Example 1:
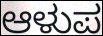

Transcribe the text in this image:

ಆಳುಪ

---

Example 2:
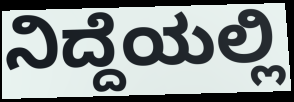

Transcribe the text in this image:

ನಿದ್ದೆಯಲ್ಲಿ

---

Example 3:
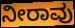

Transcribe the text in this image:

ನೀರಾವು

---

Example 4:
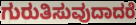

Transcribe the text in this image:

ಗುರುತಿಸುವುದಾದರೆ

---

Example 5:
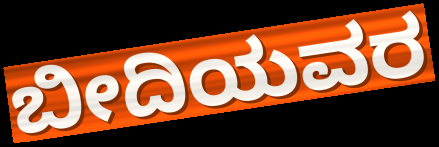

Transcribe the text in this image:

ಬೀದಿಯವರ